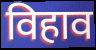
विहाव